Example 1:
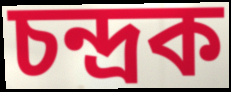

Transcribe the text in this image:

চন্দ্ৰক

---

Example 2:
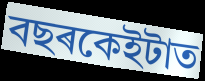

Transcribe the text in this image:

বছৰকেইটাত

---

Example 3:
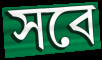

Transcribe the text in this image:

সবে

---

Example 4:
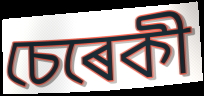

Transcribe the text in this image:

চেৰেকী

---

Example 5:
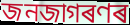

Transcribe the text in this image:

জনজাগৰণৰ